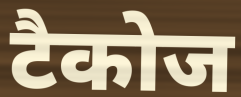
टैकोज